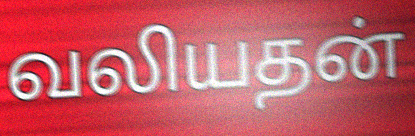
வலியதன்